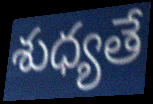
శుధ్యతే